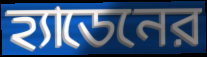
হ্যাডেনের